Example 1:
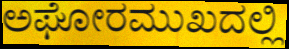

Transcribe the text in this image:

ಅಘೋರಮುಖದಲ್ಲಿ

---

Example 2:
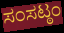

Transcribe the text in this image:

ಸಂಸಟ್ಠಂ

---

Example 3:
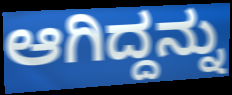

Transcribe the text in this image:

ಆಗಿದ್ದನ್ನು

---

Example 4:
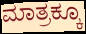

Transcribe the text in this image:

ಮಾತ್ರಕ್ಕೂ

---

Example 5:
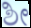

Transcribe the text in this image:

ಶೀ